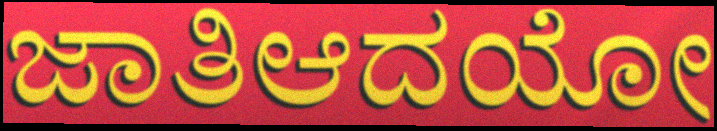
ಜಾತಿಆದಯೋ